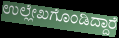
ಉಲ್ಲೇಖಗೊಂಡಿದ್ದಾರೆ